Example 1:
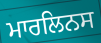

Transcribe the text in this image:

ਮਾਰਲਿਨਸ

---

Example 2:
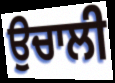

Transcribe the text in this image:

ਉਚਾਲੀ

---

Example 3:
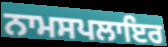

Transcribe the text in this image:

ਨਾਮਸਪਲਾਇਰ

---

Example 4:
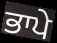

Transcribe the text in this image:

ਭਾਪੇ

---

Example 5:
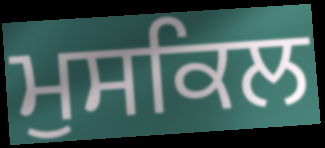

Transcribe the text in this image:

ਮੁਸਕਿਲ